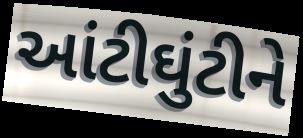
આંટીઘુંટીને